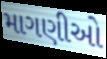
માગણીઓ